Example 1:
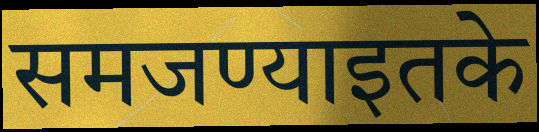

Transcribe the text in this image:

समजण्याइतके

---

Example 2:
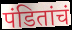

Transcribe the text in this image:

पंडितांचं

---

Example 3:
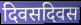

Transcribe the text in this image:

दिवसदिवस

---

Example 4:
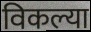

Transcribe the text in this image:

विकल्या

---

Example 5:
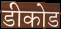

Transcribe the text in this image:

डीकोड